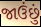
જાઉંછું